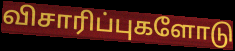
விசாரிப்புகளோடு